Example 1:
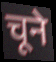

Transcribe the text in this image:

चूने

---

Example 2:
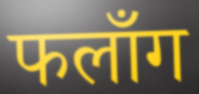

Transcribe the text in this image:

फलाँग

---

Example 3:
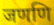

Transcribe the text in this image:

जणणि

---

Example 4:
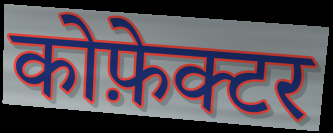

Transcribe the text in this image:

कोफ़ेक्टर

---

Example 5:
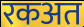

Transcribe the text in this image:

रकअत